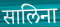
सालिना